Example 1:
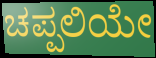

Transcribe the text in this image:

ಚಪ್ಪಲಿಯೇ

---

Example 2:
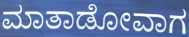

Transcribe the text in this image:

ಮಾತಾಡೋವಾಗ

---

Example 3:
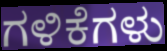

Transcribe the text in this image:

ಗಳಿಕೆಗಳು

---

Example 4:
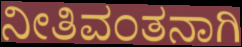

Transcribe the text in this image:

ನೀತಿವಂತನಾಗಿ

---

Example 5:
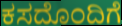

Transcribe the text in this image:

ಕಸದೊಂದಿಗೆ